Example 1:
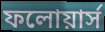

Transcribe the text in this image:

ফলোয়ার্স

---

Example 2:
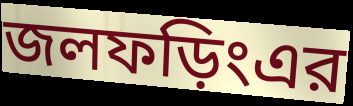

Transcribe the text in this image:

জলফড়িংএর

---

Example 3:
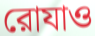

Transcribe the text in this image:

রোযাও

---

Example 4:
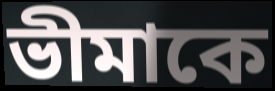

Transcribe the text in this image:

ভীমাকে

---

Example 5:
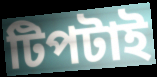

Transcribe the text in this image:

টিপটাই